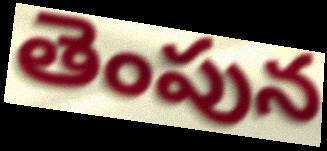
తెంపున